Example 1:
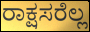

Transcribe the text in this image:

ರಾಕ್ಷಸರೆಲ್ಲ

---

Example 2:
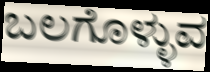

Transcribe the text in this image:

ಬಲಗೊಳ್ಳುವ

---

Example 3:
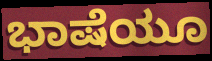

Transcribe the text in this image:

ಭಾಷೆಯೂ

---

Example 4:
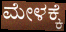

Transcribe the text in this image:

ಮೇಳಕ್ಕೆ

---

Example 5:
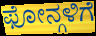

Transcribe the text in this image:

ಫೋನ್ಗಳಿಗೆ